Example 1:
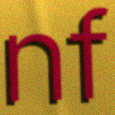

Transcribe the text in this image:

nf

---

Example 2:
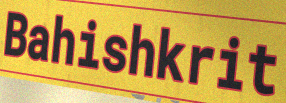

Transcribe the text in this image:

Bahishkrit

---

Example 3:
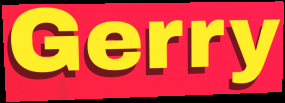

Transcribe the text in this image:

Gerry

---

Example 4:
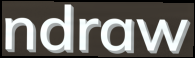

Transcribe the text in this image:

ndraw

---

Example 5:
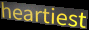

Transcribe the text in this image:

heartiest